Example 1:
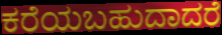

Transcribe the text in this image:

ಕರೆಯಬಹುದಾದರೆ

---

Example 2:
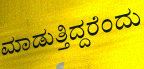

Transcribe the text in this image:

ಮಾಡುತ್ತಿದ್ದರೆಂದು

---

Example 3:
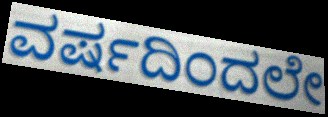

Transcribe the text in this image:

ವರ್ಷದಿಂದಲೇ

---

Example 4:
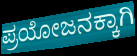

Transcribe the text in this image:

ಪ್ರಯೋಜನಕ್ಕಾಗಿ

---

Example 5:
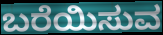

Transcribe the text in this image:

ಬರೆಯಿಸುವ